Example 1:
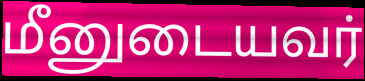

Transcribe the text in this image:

மீனுடையவர்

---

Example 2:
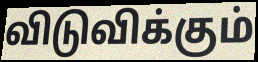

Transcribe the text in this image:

விடுவிக்கும்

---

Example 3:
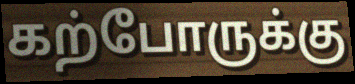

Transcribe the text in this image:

கற்போருக்கு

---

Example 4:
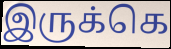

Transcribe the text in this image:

இருக்கெ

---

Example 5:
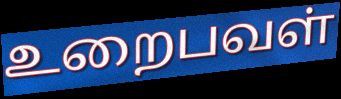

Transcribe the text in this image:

உறைபவள்